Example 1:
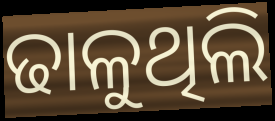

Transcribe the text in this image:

ଢାଳୁଥିଲି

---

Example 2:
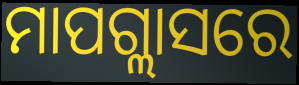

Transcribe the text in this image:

ମାପଗ୍ଲାସରେ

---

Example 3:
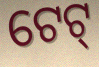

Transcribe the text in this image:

ଟେଟ୍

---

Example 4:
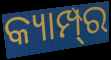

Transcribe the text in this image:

କ୍ୟାମ୍ପ୍‍ର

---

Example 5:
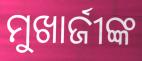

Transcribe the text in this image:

ମୁଖାର୍ଜୀଙ୍କ